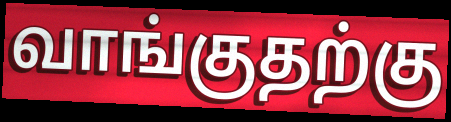
வாங்குதற்கு